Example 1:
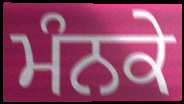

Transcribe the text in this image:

ਮੰਨਕੇ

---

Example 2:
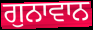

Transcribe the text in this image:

ਗੁਨਾਵਾਨ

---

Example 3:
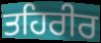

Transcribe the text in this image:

ਤਹਿਰੀਰ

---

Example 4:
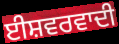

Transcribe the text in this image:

ਈਸ਼ਵਰਵਾਦੀ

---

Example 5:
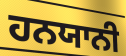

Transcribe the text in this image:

ਹਨਯਾਨੀ